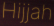
Hijjah